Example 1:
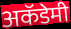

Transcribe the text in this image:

अकॅडेमी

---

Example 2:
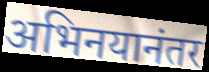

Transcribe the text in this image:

अभिनयानंतर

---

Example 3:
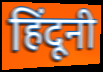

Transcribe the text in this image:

हिंदूनी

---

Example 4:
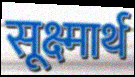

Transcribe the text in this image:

सूक्ष्मार्थ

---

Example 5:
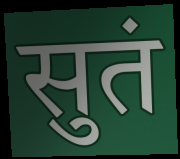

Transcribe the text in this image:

सुतं